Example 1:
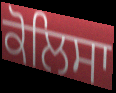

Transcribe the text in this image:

ਕੋਲਿਸਾ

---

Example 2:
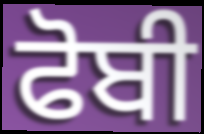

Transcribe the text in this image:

ਫੋਬੀ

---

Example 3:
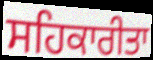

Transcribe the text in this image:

ਸਹਿਕਾਰੀਤਾ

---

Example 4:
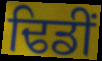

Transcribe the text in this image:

ਢਿਡੀਂ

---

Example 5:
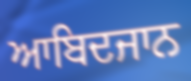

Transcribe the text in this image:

ਆਬਿਦਜਾਨ